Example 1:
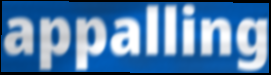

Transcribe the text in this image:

appalling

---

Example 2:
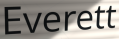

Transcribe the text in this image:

Everett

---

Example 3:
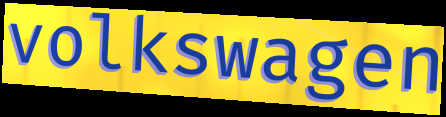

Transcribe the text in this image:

volkswagen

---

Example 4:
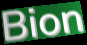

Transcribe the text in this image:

Bion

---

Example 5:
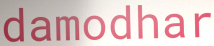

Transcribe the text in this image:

damodhar